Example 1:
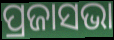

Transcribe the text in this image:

ପ୍ରଜାସଭା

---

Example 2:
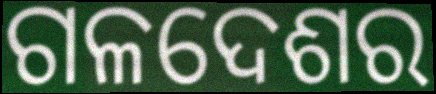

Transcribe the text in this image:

ଗଳଦେଶର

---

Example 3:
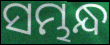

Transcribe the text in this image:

ସମ୍ଭନ୍ଧ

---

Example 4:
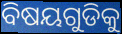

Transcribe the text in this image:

ବିଷୟଗୁଡିକୁ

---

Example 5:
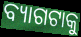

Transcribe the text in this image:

ବ୍ୟାଗଟାକୁ